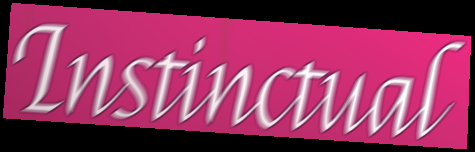
Instinctual